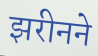
झरीनने